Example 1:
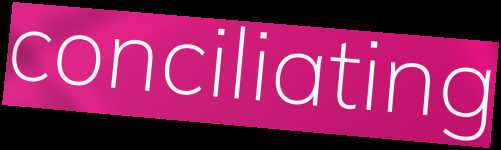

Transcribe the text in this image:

conciliating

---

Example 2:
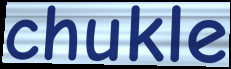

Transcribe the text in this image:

chukle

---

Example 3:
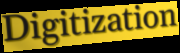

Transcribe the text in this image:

Digitization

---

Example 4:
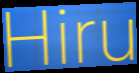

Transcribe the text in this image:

Hiru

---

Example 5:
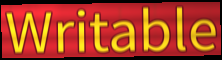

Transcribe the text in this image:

Writable